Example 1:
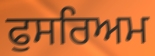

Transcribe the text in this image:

ਫੁਸਰਿਅਮ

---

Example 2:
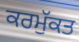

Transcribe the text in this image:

ਕਰਮੁੱਕਤ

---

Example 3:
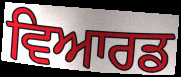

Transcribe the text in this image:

ਵਿਆਰਡ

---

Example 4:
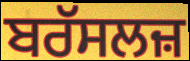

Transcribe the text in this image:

ਬਰੱਸਲਜ਼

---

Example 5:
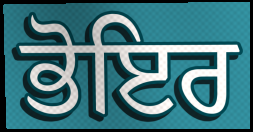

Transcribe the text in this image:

ਭੋਇਰ